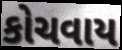
કોચવાય